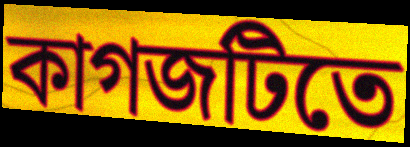
কাগজটিতে